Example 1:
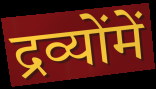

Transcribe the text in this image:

द्रव्योंमें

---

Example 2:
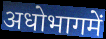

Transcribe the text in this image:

अधोभागमें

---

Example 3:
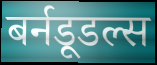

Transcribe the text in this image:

बर्नडूडल्स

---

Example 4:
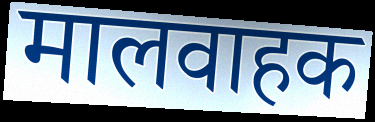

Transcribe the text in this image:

मालवाहक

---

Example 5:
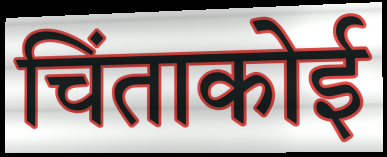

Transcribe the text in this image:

चिंताकोई